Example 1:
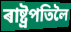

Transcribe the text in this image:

ৰাষ্ট্ৰপতিলৈ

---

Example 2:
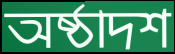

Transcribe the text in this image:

অষ্ঠাদশ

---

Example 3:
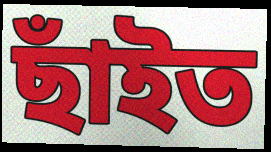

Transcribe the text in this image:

ছাঁইত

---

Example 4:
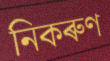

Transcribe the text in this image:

নিকৰুণ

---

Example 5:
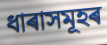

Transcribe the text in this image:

ধাৰাসমূহৰ